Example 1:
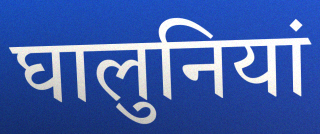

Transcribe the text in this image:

घालुनियां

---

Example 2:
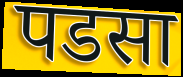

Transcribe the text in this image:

पडसा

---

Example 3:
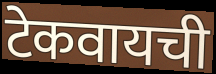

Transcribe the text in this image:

टेकवायची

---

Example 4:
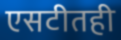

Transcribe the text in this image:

एसटीतही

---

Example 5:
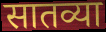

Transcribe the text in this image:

सातव्या